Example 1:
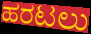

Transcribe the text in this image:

ಹರಟಲು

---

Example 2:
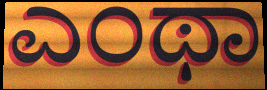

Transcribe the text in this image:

ಎಂಥಾ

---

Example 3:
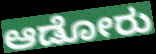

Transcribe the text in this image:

ಆಡೋರು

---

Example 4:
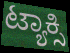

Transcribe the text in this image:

ಟ್ಯಾಕ್ಸಿ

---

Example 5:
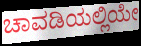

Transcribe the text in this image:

ಚಾವಡಿಯಲ್ಲಿಯೇ